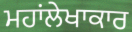
ਮਹਾਂਲੇਖਾਕਾਰ